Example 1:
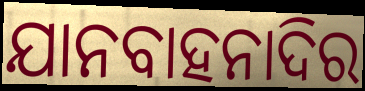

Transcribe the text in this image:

ଯାନବାହନାଦିର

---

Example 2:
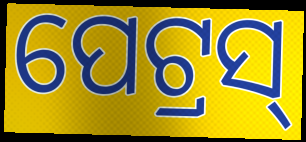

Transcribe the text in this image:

ପେଟ୍ରସ୍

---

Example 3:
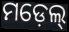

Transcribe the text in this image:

ମଡ଼େଲ୍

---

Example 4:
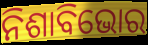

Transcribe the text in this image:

ନିଶାବିଭୋର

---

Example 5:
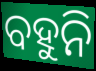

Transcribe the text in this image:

ବହୁନି